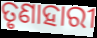
ତୃଣାହାରୀ